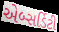
એબ્સર્ડિટી